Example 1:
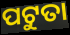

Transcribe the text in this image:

ପଟୁତା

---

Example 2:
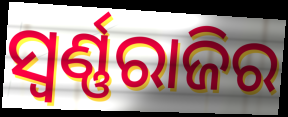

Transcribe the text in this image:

ସ୍ଵର୍ଣ୍ଣରାଜିର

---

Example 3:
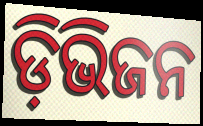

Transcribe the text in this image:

ଡ଼ିଭିଜନ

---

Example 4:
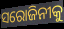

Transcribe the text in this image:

ସରୋଜିନୀକୁ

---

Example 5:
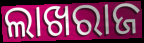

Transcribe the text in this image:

ଲାଖରାଜ